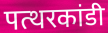
पत्थरकांडी